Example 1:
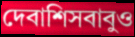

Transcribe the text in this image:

দেবাশিসবাবুও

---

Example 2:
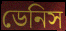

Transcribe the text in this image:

ডেনিস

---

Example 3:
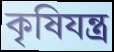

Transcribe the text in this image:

কৃষিযন্ত্র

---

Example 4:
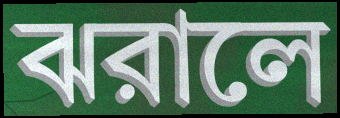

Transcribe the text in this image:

ঝরালে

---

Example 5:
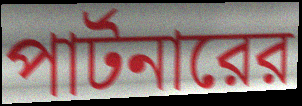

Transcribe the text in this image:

পার্টনারের